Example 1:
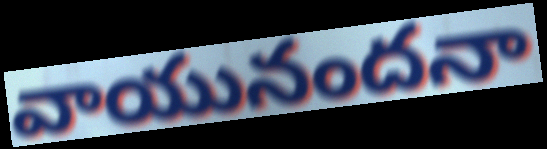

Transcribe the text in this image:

వాయునందనా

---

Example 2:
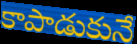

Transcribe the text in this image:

కాపాడుకునే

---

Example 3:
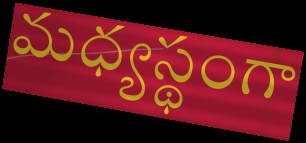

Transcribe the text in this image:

మధ్యస్థంగా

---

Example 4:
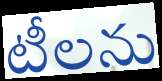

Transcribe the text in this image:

టీలను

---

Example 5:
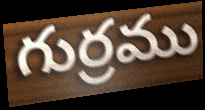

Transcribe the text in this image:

గుర్రము